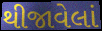
થીજાવેલાં